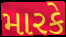
મારકે